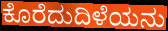
ಕೊರೆದುದಿಳೆಯನು